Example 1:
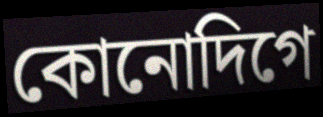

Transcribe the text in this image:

কোনোদিগে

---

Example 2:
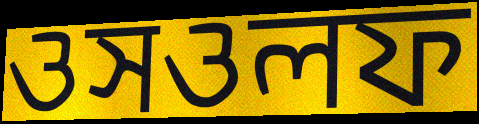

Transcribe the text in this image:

ওসওলফ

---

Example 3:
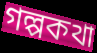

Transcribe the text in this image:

গল্পকথা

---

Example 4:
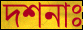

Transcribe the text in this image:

দশনাঃ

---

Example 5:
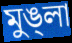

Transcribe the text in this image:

মুঙ্লা